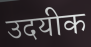
उदयीक